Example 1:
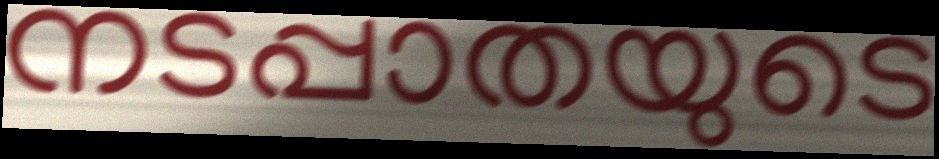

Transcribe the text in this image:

നടപ്പാതയുടെ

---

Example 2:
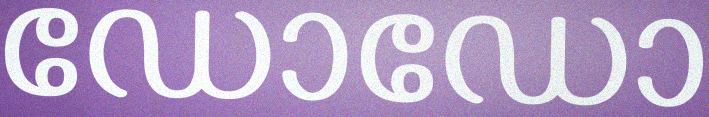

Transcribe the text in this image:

ഡോഡോ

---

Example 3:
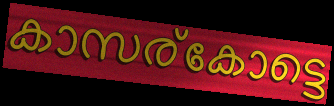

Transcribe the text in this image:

കാസര്കോട്ടെ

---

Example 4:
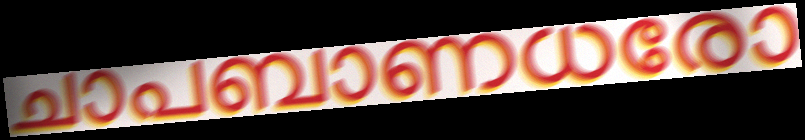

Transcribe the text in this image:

ചാപബാണധരോ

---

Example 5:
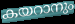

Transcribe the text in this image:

കയറാനും